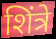
शिंत्रे